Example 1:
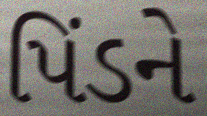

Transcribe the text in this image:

પિંડને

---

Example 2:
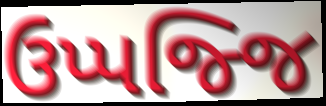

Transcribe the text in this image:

ઉપ્પજ્જિ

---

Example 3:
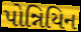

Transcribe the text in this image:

પોન્નિયિન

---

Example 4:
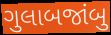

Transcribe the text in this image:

ગુલાબજાંબુ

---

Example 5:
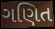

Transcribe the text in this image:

ગણિત